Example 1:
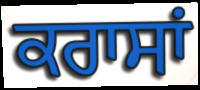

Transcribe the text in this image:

ਕਰਾਸਾਂ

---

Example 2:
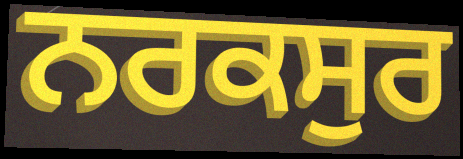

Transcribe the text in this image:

ਨਰਕਸੁਰ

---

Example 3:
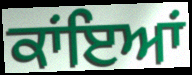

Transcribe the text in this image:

ਕਾਂਇਆਂ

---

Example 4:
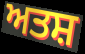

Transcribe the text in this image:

ਅਤਸ਼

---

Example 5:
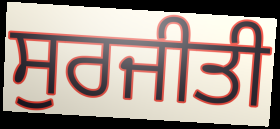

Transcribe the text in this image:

ਸੁਰਜੀਤੀ